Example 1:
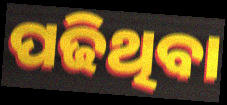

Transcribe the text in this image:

ପଢିଥିବା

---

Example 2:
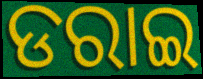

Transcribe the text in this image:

ଡରାଇ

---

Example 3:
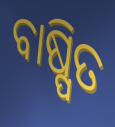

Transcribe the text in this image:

ବାଷ୍ପିତ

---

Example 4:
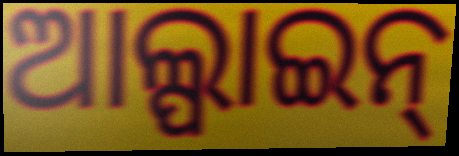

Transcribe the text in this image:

ଆଲ୍ପାଇନ୍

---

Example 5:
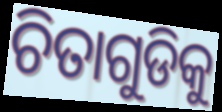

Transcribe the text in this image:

ଚିତାଗୁଡିକୁ